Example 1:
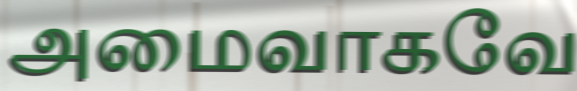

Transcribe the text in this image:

அமைவாகவே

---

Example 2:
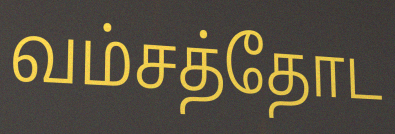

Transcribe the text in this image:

வம்சத்தோட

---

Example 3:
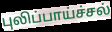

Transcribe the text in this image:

புலிப்பாய்ச்சல்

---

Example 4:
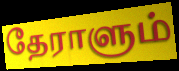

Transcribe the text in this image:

தேராளும்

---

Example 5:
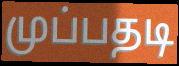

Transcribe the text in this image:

முப்பதடி